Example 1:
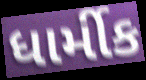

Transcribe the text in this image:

ધાર્મીક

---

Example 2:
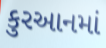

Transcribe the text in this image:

કુરઆનમાં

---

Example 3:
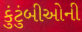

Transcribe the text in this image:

કુંટુંબીઓની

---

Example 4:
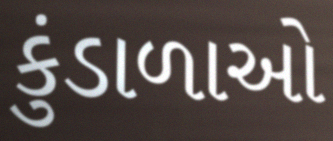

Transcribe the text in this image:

કુંડાળાઓ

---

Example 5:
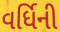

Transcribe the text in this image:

વર્ધિની